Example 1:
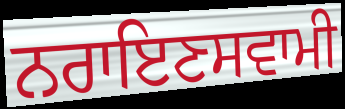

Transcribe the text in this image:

ਨਰਾਇਣਸਵਾਮੀ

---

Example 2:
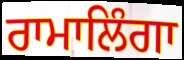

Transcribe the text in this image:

ਰਾਮਾਲਿੰਗਾ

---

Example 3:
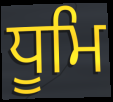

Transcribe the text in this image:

ਧੂਮਿ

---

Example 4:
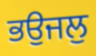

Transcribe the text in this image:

ਭਉਜਲੁ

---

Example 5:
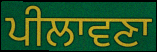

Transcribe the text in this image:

ਪੀਲਾਵਣਾ